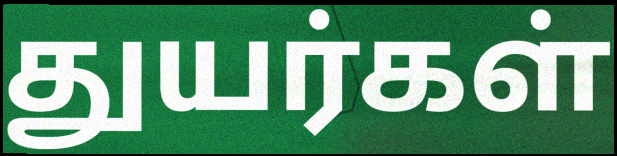
துயர்கள்